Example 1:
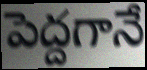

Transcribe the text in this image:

పెద్దగానే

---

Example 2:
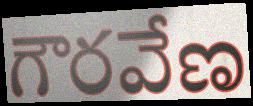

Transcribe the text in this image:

గౌరవేణ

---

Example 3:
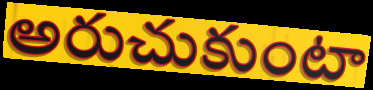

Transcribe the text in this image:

అరుచుకుంటా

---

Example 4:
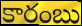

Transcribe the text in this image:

కారంబు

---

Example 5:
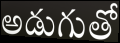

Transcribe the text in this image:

అడుగుతో